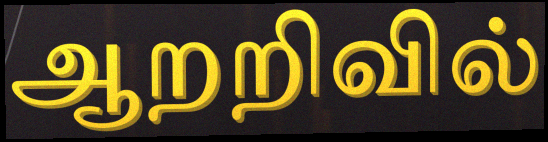
ஆறறிவில்